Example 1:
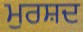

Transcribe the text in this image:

ਮੁਰਸ਼ਦ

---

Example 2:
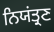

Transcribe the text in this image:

ਨਿਯਂਤ੍ਰਣ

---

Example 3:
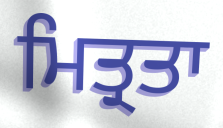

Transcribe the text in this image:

ਮਿਤ੍ਰਤਾ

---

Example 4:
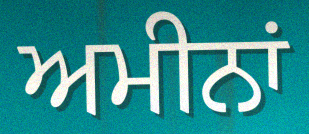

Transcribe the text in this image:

ਅਮੀਨਾਂ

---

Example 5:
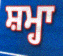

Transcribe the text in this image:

ਸ਼ਮ੍ਹਾ